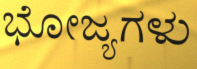
ಭೋಜ್ಯಗಳು